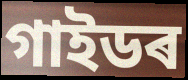
গাইডৰ